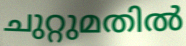
ചുറ്റുമതിൽ